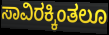
ಸಾವಿರಕ್ಕಿಂತಲೂ